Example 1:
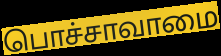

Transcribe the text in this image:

பொச்சாவாமை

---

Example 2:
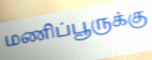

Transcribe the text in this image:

மணிப்பூருக்கு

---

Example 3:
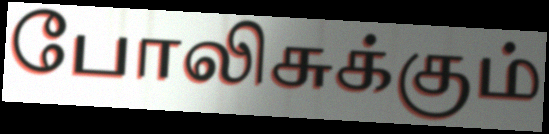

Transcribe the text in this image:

போலிசுக்கும்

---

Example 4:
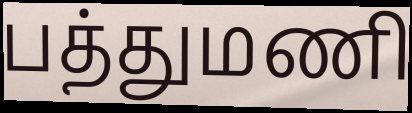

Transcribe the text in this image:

பத்துமணி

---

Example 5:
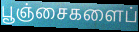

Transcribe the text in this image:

பூஞ்சைகளைப்